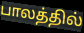
பாலத்தில்